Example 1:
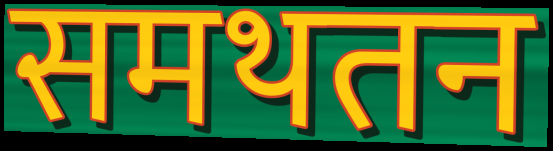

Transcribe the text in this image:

समथतन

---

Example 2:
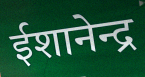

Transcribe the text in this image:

ईशानेन्द्र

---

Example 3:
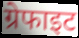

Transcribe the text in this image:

ग्रेफाइट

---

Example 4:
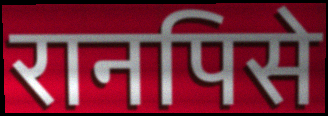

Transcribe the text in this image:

रानपिसे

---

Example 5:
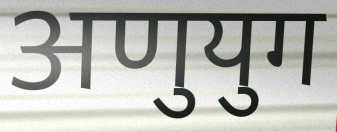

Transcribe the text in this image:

अणुयुग